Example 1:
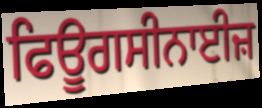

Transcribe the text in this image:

ਫਿਊਗਸੀਨਾਈਜ਼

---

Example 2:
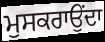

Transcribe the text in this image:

ਮੁਸਕਰਾਉਂਦਾ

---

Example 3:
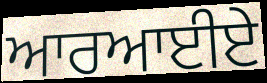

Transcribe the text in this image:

ਆਰਆਈਏ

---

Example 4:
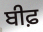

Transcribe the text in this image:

ਬੀਫ਼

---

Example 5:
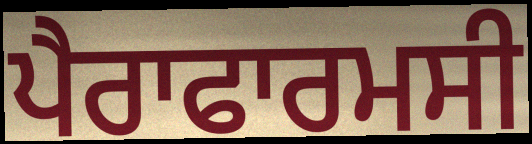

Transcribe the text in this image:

ਪੈਰਾਫਾਰਮਸੀ